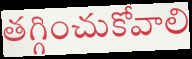
తగ్గించుకోవాలి